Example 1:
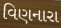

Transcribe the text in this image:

વિણનારા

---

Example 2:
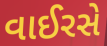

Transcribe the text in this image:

વાઈરસે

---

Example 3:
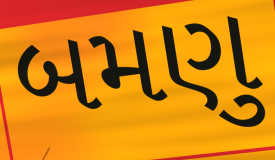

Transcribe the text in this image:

બમણુ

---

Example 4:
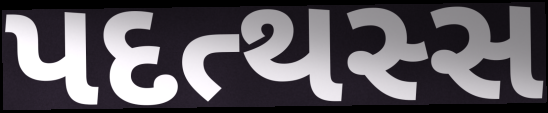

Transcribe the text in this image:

પદત્થસ્સ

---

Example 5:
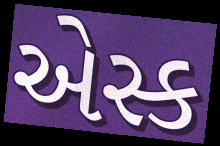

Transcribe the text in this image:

એસ્ક